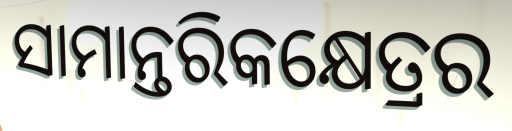
ସାମାନ୍ତରିକକ୍ଷେତ୍ରର